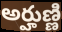
అర్హుణ్ణి